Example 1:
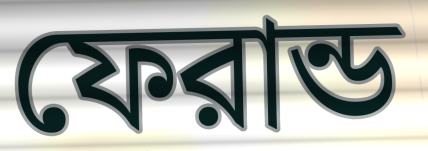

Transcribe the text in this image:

ফেরান্ড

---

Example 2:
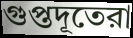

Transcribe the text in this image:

গুপ্তদূতেরা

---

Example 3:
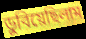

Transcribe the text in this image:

ডুবিয়েছিলাম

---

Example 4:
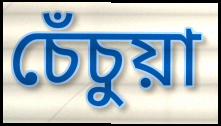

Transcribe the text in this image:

চেঁচুয়া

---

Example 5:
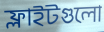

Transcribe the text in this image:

ফ্লাইটগুলো